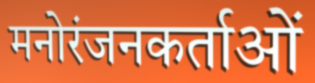
मनोरंजनकर्ताओं